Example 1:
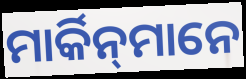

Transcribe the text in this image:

ମାର୍କିନ୍‌ମାନେ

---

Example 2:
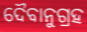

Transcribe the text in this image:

ଦୈବାନୁଗ୍ରହ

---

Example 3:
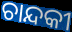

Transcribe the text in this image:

ଚାନ୍ଦକୀ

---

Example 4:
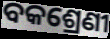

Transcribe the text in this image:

ବକଶ୍ରେଣୀ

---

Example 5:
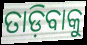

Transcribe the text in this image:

ତାଡ଼ିବାକୁ